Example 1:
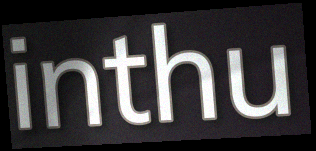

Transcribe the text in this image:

inthu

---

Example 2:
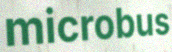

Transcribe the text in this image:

microbus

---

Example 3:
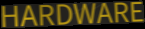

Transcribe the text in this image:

HARDWARE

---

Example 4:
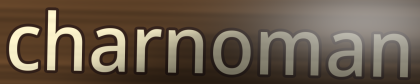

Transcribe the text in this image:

charnoman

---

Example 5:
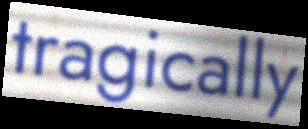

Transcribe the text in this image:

tragically